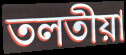
তলতীয়া